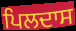
ਪਿਲਦਾਸ